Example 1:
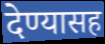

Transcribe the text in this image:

देण्यासह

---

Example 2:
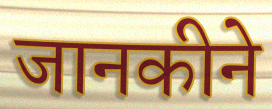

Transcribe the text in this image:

जानकीने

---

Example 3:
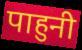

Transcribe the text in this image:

पाहुनी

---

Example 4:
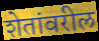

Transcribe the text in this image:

शेतांवरील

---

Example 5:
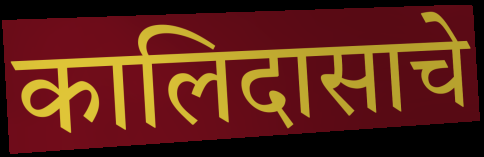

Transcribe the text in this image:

कालिदासाचे